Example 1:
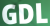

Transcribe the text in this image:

GDL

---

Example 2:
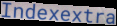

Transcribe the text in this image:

Indexextra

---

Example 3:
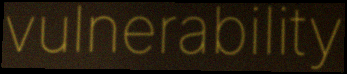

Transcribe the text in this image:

vulnerability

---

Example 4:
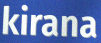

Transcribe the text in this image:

kirana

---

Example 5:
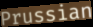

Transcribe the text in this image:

Prussian